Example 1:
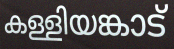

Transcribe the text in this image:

കള്ളിയങ്കാട്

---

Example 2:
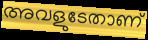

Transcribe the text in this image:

അവളുടേതാണ്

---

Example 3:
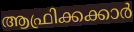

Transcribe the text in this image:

ആഫ്രിക്കക്കാർ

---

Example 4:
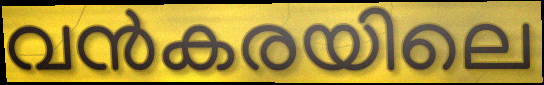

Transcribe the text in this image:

വൻകരയിലെ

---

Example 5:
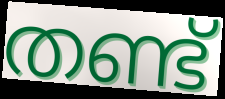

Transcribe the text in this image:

തണ്ട്